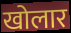
खोलार